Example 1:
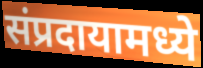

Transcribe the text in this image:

संप्रदायामध्ये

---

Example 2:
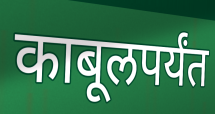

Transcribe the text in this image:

काबूलपर्यंत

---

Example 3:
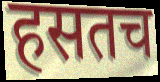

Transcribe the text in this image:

हसतच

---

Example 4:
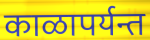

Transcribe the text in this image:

काळापर्यन्त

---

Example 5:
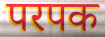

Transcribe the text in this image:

परपक